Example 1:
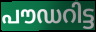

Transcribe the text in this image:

പൗഡറിട്ട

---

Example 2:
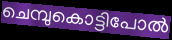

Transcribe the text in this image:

ചെമ്പുകൊട്ടിപോൽ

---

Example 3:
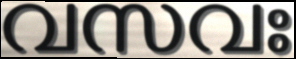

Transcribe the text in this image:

വസവഃ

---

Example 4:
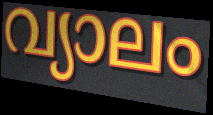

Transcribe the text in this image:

വ്യാലം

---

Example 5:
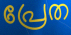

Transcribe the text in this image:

പ്രേത